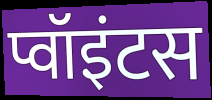
प्वॉइंटस